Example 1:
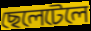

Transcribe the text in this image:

ছেলেটেলে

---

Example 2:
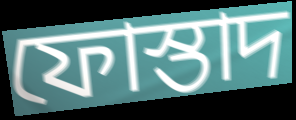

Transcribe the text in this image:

ফোস্তাদ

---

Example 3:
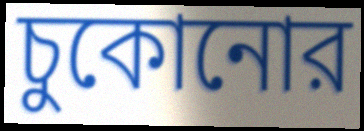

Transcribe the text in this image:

চুকোনোর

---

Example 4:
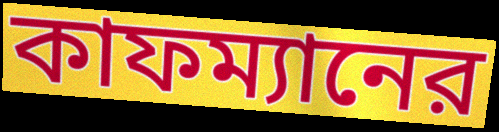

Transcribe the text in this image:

কাফম্যানের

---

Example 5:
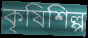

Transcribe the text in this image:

কৃষিশিল্প